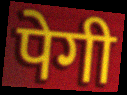
पेगी